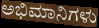
ಅಭಿಮಾನಿಗಳು